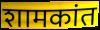
शामकांत